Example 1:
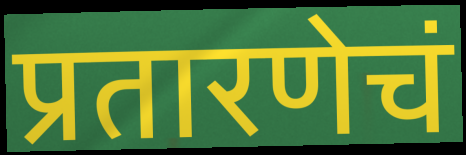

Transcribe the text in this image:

प्रतारणेचं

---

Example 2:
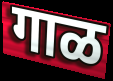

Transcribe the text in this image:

गाळ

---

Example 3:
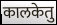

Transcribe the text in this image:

कालकेतु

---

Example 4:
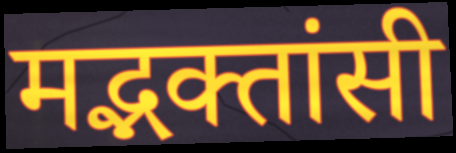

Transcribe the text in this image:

मद्भक्तांसी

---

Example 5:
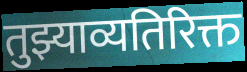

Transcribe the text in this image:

तुझ्याव्यतिरिक्त